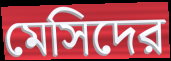
মেসিদের